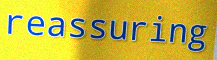
reassuring